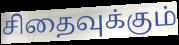
சிதைவுக்கும்